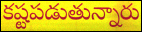
కష్టపడుతున్నారు